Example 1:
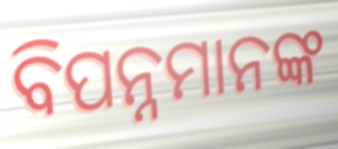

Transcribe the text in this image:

ବିପନ୍ନମାନଙ୍କ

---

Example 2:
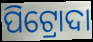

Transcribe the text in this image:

ପିଟ୍ରୋଦା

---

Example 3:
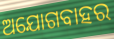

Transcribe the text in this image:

ଅଯୋଗବାହର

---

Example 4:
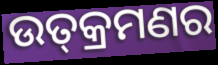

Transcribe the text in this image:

ଉତ୍‍କ୍ରମଣର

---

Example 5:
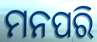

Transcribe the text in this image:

ମନପରି